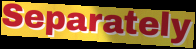
Separately